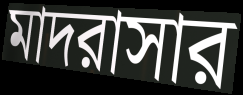
মাদরাসার